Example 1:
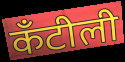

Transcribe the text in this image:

कँटीली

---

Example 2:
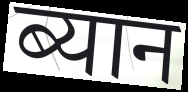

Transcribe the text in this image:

ब्यान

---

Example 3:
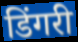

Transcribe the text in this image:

डिंगरी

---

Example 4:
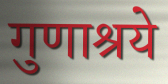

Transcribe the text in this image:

गुणाश्रये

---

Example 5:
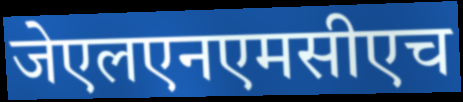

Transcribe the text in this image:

जेएलएनएमसीएच